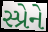
સ્પ્રેને